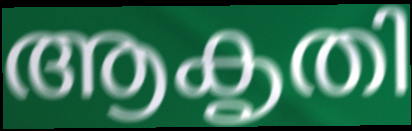
ആകൃതി